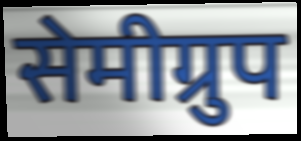
सेमीग्रुप